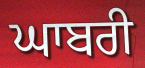
ਘਾਬਰੀ